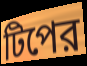
টিপের